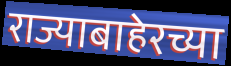
राज्याबाहेरच्या